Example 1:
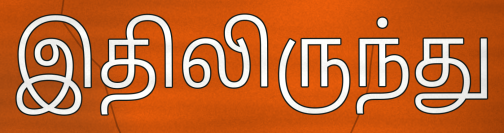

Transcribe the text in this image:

இதிலிருந்து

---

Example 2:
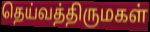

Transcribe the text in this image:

தெய்வத்திருமகள்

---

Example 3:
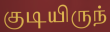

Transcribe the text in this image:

குடியிருந்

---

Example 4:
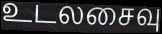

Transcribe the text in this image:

உடலசைவு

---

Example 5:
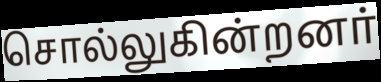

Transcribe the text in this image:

சொல்லுகின்றனர்